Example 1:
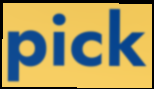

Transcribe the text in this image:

pick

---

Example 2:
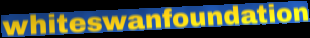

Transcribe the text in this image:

whiteswanfoundation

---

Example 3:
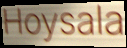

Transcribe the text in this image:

Hoysala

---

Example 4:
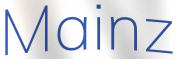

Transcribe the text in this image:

Mainz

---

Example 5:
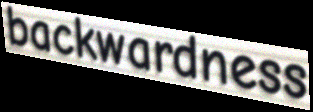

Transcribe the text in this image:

backwardness